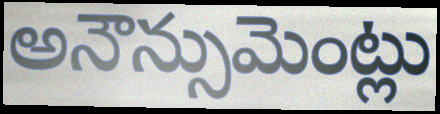
అనౌన్సుమెంట్లు